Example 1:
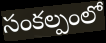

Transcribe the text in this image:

సంకల్పంలో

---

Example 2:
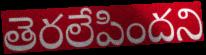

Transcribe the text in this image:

తెరలేపిందని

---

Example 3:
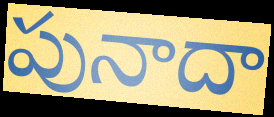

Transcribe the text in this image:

పునాదా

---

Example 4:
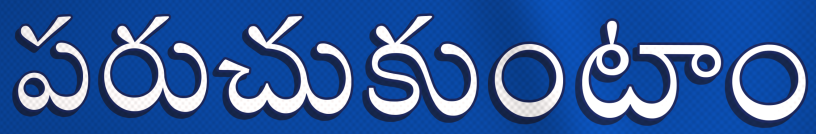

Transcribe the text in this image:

పరుచుకుంటాం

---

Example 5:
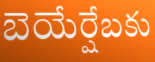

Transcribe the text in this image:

బెయేర్షేబకు